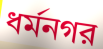
ধর্মনগর